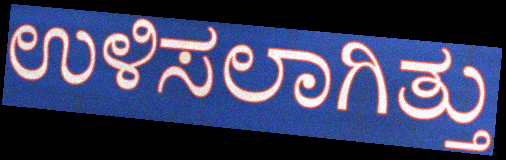
ಉಳಿಸಲಾಗಿತ್ತು